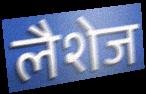
लैशेज